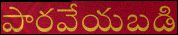
పారవేయబడి